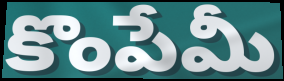
కొంపేమీ